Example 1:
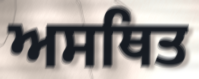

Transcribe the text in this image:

ਅਸਥਿਤ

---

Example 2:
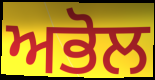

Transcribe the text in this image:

ਅਭੋਲ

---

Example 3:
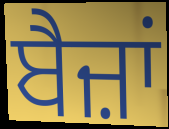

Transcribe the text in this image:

ਬੈਜ਼ਾਂ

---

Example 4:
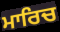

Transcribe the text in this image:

ਮਾਰਿਚ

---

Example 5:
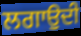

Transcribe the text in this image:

ਲਗਾਉਦੀ